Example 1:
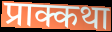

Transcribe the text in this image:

प्राक्कथा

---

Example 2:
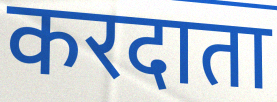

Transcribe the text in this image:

करदाता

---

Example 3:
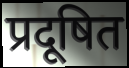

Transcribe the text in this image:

प्रदूषित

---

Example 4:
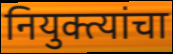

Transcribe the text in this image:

नियुक्त्यांचा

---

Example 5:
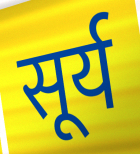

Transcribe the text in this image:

सूर्य